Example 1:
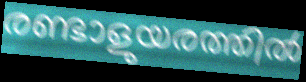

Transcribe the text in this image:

രണ്ടാളുയരത്തിൽ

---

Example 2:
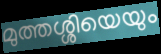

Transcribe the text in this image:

മുത്തശ്ശിയെയും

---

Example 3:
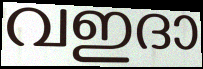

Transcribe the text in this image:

വഇദാ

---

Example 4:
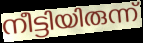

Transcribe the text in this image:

നീട്ടിയിരുന്ന്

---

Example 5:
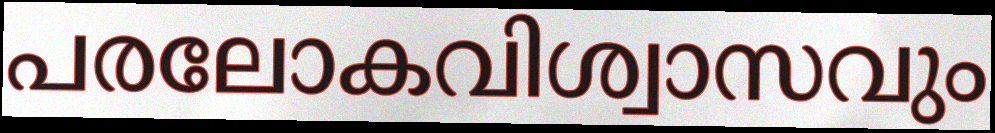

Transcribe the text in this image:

പരലോകവിശ്വാസവും